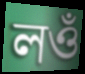
লওঁ